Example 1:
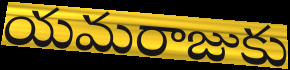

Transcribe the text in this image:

యమరాజుకు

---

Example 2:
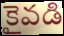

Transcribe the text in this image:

కైవడి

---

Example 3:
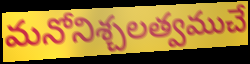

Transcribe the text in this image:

మనోనిశ్చలత్వముచే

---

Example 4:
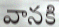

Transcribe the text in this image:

వానకి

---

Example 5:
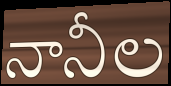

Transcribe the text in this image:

నానీల